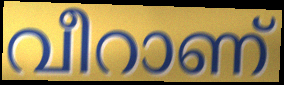
വീറാണ്